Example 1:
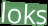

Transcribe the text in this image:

loks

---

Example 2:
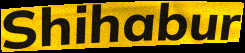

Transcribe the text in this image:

Shihabur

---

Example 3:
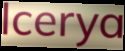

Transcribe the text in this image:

Icerya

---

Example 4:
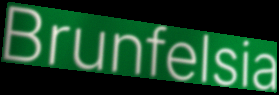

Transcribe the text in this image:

Brunfelsia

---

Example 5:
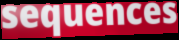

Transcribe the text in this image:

sequences